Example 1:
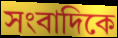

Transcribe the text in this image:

সংবাদিকে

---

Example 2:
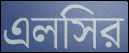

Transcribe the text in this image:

এলসির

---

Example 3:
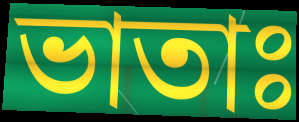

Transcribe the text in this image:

ভাতাঃ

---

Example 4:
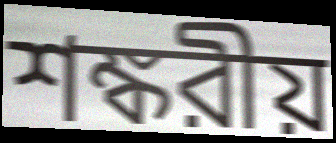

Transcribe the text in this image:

শঙ্করীয়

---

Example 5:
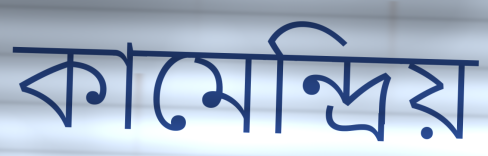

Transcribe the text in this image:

কামেন্দ্রিয়